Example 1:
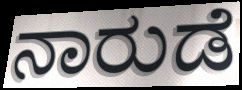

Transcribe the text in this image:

ನಾರುಡೆ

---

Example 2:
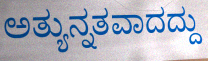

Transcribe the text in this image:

ಅತ್ಯುನ್ನತವಾದದ್ದು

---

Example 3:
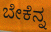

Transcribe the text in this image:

ಬೇಕೆನ್ನ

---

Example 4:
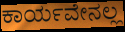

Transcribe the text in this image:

ಕಾರ್ಯವೇನಲ್ಲ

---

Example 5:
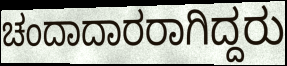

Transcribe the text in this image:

ಚಂದಾದಾರರಾಗಿದ್ದರು